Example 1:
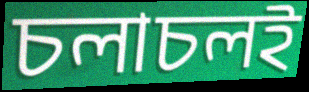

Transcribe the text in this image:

চলাচলই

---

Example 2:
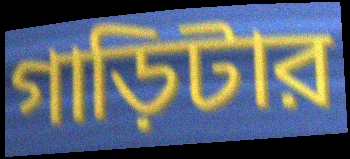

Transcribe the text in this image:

গাড়িটার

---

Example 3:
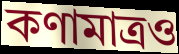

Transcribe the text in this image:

কণামাত্রও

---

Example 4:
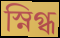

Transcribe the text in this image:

স্নিগ্ধ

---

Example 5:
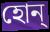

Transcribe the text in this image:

হোন্